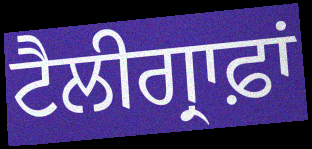
ਟੈਲੀਗ੍ਰਾਫ਼ਾਂ